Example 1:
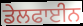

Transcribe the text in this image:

ਡੇਲਫਾਈਨ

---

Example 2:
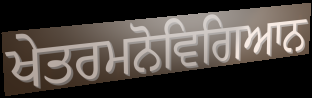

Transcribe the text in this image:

ਖੇਤਰਮਨੋਵਿਗਿਆਨ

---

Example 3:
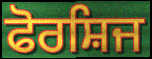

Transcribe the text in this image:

ਫੋਰਸ਼ਿਜ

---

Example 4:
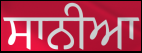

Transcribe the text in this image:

ਸਾਨੀਆ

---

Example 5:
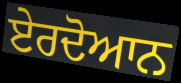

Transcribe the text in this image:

ਏਰਦੋਆਨ